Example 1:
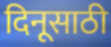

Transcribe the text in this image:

दिनूसाठी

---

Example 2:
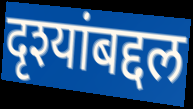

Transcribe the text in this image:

दृश्यांबद्दल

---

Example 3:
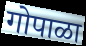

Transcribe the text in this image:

गोपाळा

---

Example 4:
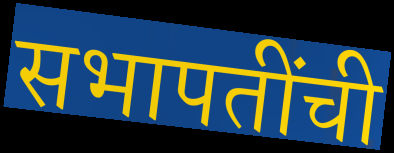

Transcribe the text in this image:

सभापतींची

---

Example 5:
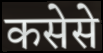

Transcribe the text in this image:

कसेसे